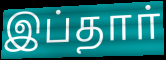
இப்தார்